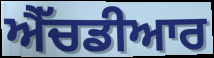
ਐੱਚਡੀਆਰ